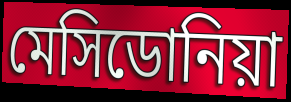
মেসিডোনিয়া